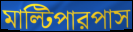
মাল্টিপারপাস